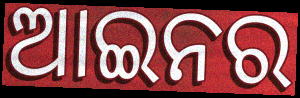
ଆଇନର